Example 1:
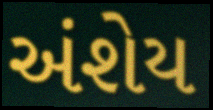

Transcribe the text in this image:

અંશેય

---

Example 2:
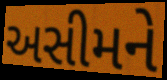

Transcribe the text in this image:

અસીમને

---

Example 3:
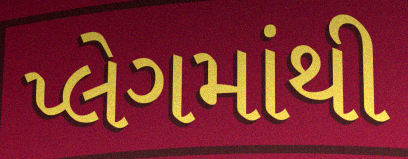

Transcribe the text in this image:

પ્લેગમાંથી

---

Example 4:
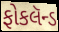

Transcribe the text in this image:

ફોકલૅન્ડ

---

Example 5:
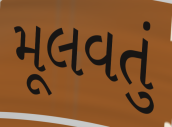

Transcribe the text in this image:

મૂલવતું